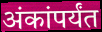
अंकांपर्यंत